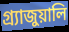
গ্র্যাজুয়ালি